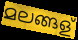
മലങ്ങള്